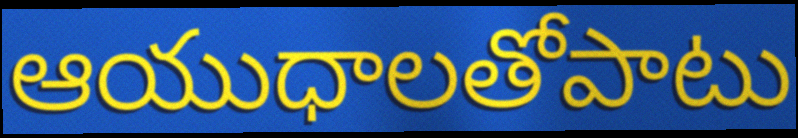
ఆయుధాలతోపాటు